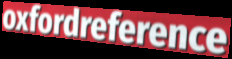
oxfordreference